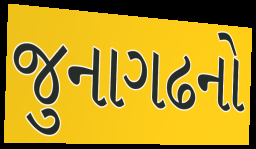
જુનાગઢનો